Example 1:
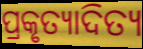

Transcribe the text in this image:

ପ୍ରକୃତ୍ୟାଦିତ୍ୟ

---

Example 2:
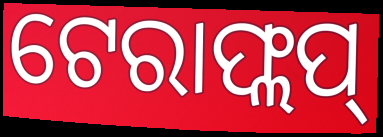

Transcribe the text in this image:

ଟେରାଫ୍ଲପ୍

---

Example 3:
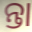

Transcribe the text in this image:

ନ୍ତା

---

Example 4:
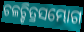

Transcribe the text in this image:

ଚଳଚ୍ଚିତ୍ରସମ୍ଭୋଗ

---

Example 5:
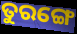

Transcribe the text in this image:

ତୁରଙ୍ଗେ